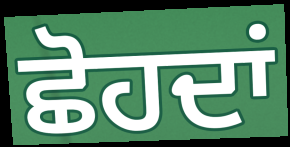
ਛੋਹਦਾਂ